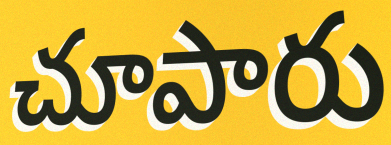
చూపారు